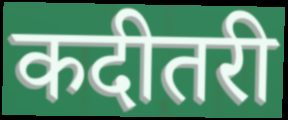
कदीतरी